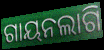
ଗାୟନଲାଗି